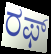
ರಫ್